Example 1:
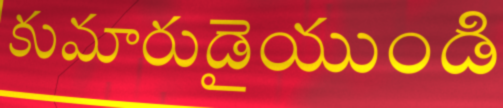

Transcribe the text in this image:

కుమారుడైయుండి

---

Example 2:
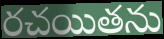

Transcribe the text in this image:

రచయితను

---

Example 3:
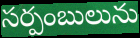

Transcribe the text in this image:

సర్పంబులును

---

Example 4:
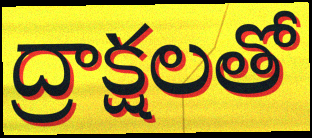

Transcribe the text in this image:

ద్రాక్షలతో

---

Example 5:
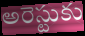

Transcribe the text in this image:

అరెస్టుకు